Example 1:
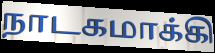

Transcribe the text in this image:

நாடகமாக்கி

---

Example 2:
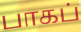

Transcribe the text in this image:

பாகப்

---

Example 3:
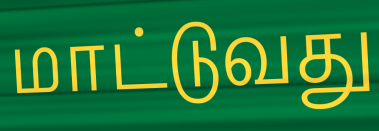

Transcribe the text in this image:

மாட்டுவது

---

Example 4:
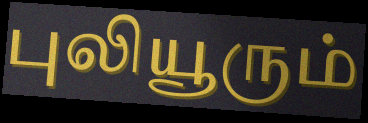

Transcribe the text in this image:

புலியூரும்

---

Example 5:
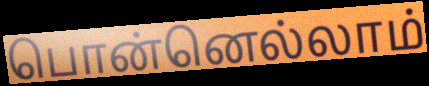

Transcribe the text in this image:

பொன்னெல்லாம்